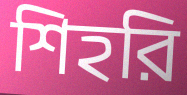
শিহরি